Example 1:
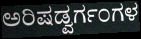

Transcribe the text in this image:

ಅರಿಷಡ್ವರ್ಗಂಗಳ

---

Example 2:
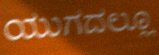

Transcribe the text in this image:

ಯುಗದಲ್ಲೂ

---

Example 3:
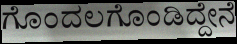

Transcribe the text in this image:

ಗೊಂದಲಗೊಂಡಿದ್ದೇನೆ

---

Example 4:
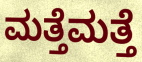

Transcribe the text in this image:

ಮತ್ತೆಮತ್ತೆ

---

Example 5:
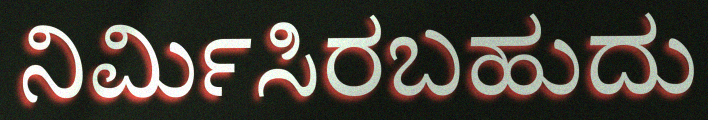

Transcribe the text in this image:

ನಿರ್ಮಿಸಿರಬಹುದು